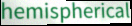
hemispherical